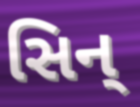
સિન્